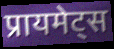
प्रायमेट्स